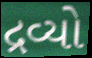
દ્રવ્યો